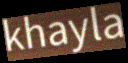
khayla